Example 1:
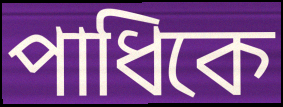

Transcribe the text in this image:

পাধিকে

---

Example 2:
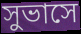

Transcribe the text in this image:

সুভাসে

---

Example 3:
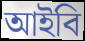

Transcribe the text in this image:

আইবি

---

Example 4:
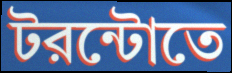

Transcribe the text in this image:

টরন্টোতে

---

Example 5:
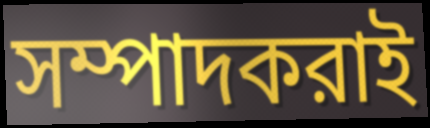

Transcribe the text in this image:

সম্পাদকরাই